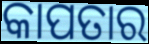
କାପତାର